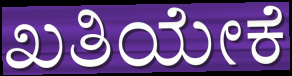
ಖತಿಯೇಕೆ